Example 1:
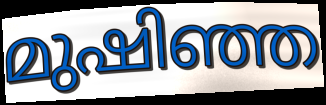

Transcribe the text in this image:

മുഷിഞ്ഞ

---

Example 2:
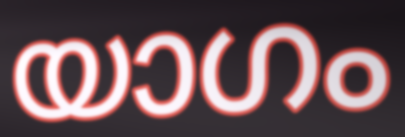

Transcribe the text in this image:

യാഗം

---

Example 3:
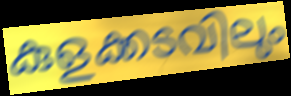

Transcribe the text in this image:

കുളക്കടവിലും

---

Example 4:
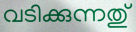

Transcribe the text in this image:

വടിക്കുന്നതു്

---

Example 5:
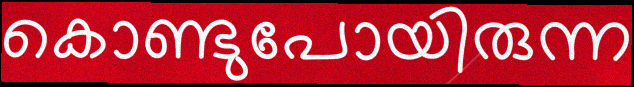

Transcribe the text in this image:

കൊണ്ടുപോയിരുന്ന